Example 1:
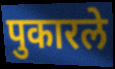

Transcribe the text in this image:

पुकारले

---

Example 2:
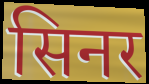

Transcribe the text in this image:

सिनर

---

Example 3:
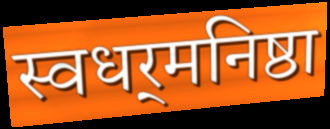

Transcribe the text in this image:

स्वधर्मनिष्ठा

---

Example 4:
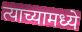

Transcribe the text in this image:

त्याच्यामध्ये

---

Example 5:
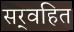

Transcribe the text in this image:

सर्वहित